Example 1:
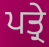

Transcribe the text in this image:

ਪਤ੍ਰੇ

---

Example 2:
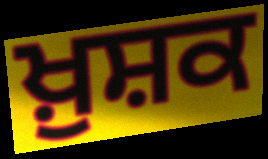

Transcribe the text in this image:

ਖ਼ੁਸ਼ਕ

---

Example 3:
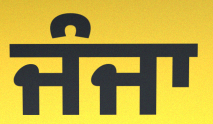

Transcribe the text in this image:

ਜੰਜਾ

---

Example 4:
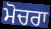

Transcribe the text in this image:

ਮੋਚਰਾ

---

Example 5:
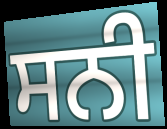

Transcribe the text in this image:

ਸਨੀ